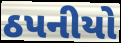
ઠપનીયો